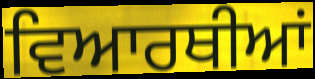
ਵਿਆਰਥੀਆਂ